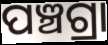
ପଞ୍ଚଗ୍ରା